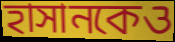
হাসানকেও